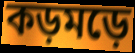
কড়মড়ে